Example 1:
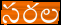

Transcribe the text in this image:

సరల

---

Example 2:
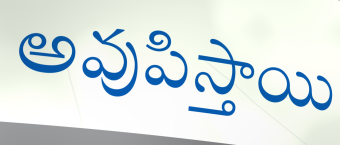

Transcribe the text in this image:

అవుపిస్తాయి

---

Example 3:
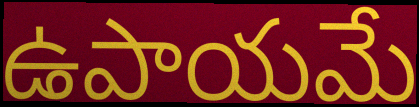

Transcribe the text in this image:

ఉపాయమే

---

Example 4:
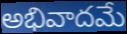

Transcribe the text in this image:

అభివాదమే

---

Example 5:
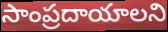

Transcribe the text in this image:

సాంప్రదాయాలని